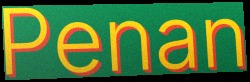
Penan